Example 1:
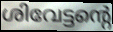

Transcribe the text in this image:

ശിവേട്ടന്റെ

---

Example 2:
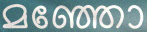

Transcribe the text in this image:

മഞ്ഞോ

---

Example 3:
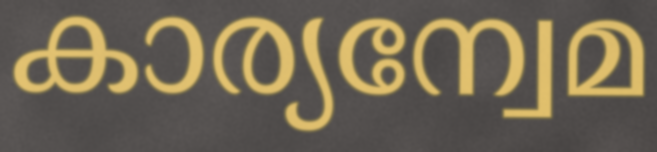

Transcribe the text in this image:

കാര്യന്വേമ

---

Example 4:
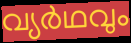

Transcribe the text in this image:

വ്യർഥവും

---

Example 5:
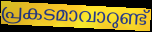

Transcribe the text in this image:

പ്രകടമാവാറുണ്ട്